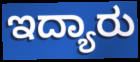
ಇದ್ಯಾರು